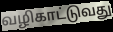
வழிகாட்டுவது